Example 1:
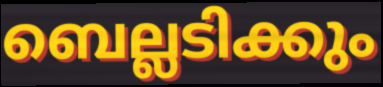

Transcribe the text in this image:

ബെല്ലടിക്കും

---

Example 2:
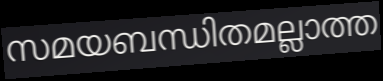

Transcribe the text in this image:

സമയബന്ധിതമല്ലാത്ത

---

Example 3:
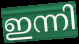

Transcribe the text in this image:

ഇന്നി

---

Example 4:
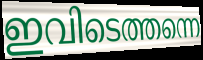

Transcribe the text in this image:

ഇവിടെത്തന്നെ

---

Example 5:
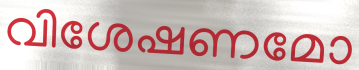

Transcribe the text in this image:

വിശേഷണമോ